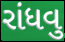
રાંધવુ